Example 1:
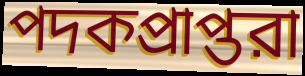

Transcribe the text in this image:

পদকপ্রাপ্তরা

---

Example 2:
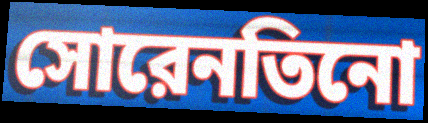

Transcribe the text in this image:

সোরেনতিনো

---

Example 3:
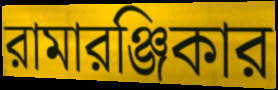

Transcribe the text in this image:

রামারঞ্জিকার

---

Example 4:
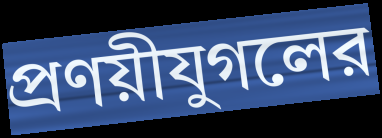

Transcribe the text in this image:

প্রণয়ীযুগলের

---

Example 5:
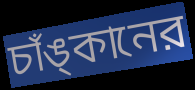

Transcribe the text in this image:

চাঁঙ্‌কানের